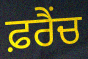
ਫ਼ਰੈਂਚ